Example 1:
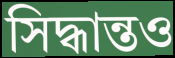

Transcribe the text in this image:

সিদ্ধান্তও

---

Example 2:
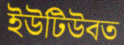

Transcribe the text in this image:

ইউটিউবত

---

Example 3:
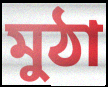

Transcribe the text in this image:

মুঠা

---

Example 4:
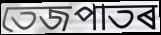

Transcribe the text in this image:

তেজপাতৰ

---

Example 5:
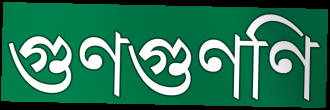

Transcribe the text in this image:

গুণগুণণি